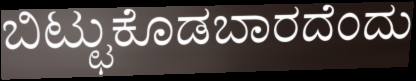
ಬಿಟ್ಟುಕೊಡಬಾರದೆಂದು